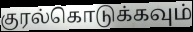
குரல்கொடுக்கவும்